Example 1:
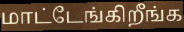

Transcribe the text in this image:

மாட்டேங்கிறீங்க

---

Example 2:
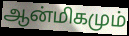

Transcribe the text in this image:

ஆன்மிகமும்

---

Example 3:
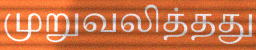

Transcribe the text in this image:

முறுவலித்தது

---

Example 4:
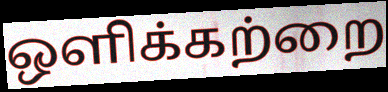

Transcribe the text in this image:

ஒளிக்கற்றை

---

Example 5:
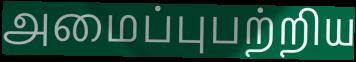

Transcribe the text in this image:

அமைப்புபற்றிய